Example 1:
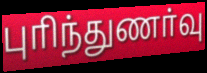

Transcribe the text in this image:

புரிந்துணர்வு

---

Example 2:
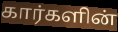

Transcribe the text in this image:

கார்களின்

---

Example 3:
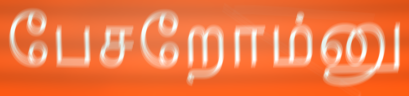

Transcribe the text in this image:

பேசறோம்னு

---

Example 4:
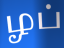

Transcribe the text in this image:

ழப்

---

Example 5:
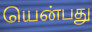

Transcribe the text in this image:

யென்பது